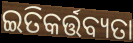
ଇତିକର୍ତ୍ତବ୍ୟତା